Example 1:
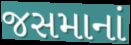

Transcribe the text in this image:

જસમાનાં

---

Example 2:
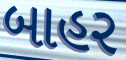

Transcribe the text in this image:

બાહર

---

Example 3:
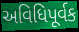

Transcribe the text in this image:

અવિધિપૂર્વક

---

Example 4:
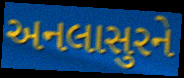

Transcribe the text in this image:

અનલાસુરને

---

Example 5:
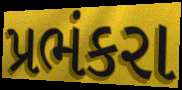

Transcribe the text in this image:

પ્રભંકરા